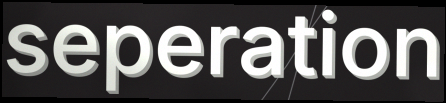
seperation